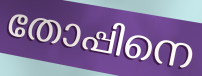
തോപ്പിനെ